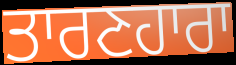
ਤਾਰਣਹਾਰਾ